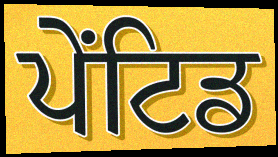
ਪੇਂਟਿਡ